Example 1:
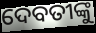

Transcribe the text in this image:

ଦେବତୀଙ୍କୁ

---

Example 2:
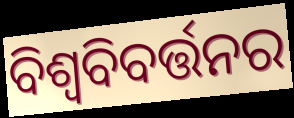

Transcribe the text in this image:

ବିଶ୍ଵବିବର୍ତ୍ତନର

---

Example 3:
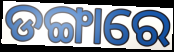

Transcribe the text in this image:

ଡଙ୍ଗାରେ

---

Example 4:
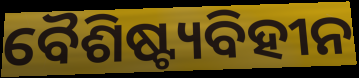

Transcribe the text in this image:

ବୈଶିଷ୍ଟ୍ୟବିହୀନ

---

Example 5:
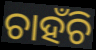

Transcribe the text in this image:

ଚାହଁଚି